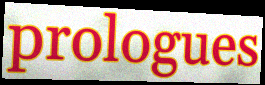
prologues